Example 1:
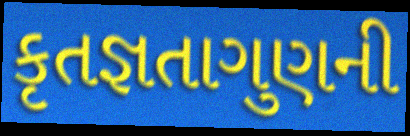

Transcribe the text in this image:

કૃતજ્ઞતાગુણની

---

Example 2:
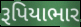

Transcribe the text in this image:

રૂપિયાભાર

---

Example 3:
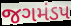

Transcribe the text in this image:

જગમંડપ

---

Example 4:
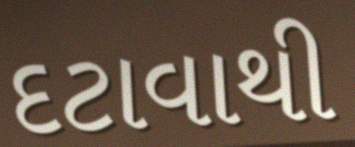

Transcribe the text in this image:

દટાવાથી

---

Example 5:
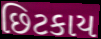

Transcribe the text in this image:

છિટકાય